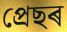
প্ৰেছৰ